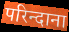
परिन्दाना